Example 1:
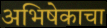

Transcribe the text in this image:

अभिषेकाचा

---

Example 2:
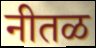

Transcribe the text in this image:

नीतळ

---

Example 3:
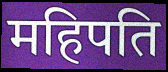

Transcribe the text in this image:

महिपति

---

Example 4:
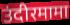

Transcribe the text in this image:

उंदीरमामा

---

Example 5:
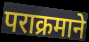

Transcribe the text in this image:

पराक्रमाने